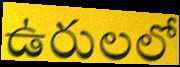
ఉరులలో